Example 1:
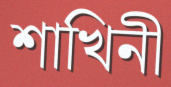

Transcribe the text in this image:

শাখিনী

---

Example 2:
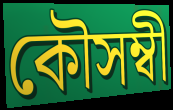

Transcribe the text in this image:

কৌসম্বী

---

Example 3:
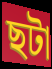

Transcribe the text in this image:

ছটা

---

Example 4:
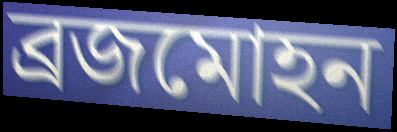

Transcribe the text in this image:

ব্ৰজমোহন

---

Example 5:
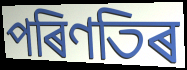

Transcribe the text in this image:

পৰিণতিৰ